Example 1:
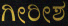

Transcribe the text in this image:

ಗೀರೀಶ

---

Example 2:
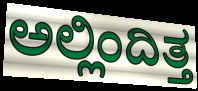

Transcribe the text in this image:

ಅಲ್ಲಿಂದಿತ್ತ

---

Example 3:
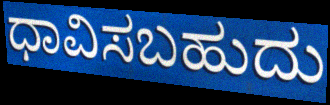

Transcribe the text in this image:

ಧಾವಿಸಬಹುದು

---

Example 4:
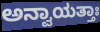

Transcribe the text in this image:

ಅನ್ವಾಯತ್ತಾಃ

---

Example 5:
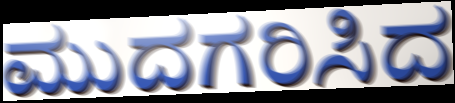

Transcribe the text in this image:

ಮುದಗರಿಸಿದ